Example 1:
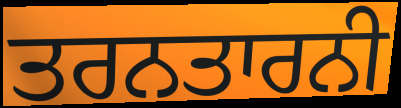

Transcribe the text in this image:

ਤਰਨਤਾਰਨੀ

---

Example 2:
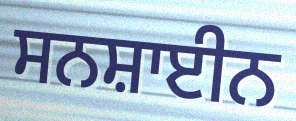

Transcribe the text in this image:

ਸਨਸ਼ਾਈਨ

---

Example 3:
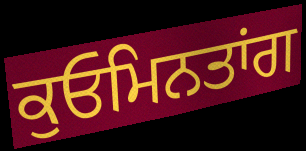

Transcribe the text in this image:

ਕੁਓਮਿਨਤਾਂਗ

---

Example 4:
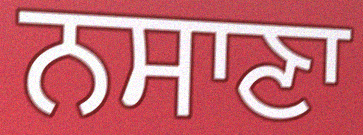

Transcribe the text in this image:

ਨਸਾਣਾ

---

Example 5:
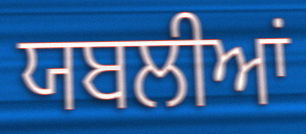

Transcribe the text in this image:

ਯਬਲੀਆਂ